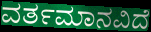
ವರ್ತಮಾನವಿದೆ